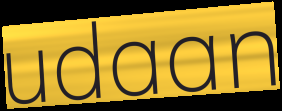
udaan